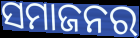
ସମାଜନର